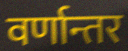
वर्णान्तर